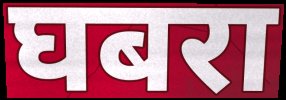
घबरा